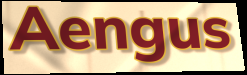
Aengus